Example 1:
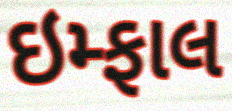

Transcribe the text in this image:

ઇમ્ફાલ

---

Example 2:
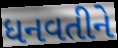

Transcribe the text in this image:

ધનવતીને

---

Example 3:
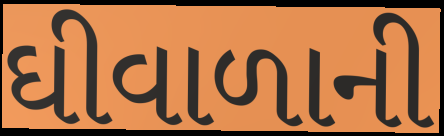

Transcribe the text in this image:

ઘીવાળાની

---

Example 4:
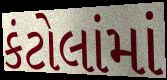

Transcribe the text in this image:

કંટોલાંમાં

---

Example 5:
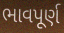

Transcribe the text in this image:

ભાવપૂર્ણ